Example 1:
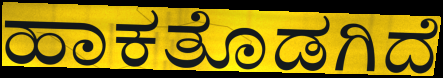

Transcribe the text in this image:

ಹಾಕತೊಡಗಿದೆ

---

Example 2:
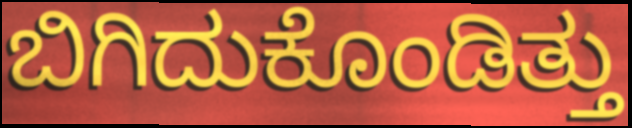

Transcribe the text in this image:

ಬಿಗಿದುಕೊಂಡಿತ್ತು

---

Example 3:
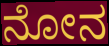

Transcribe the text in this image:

ನೋನ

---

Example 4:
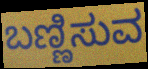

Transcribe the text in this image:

ಬಣ್ಣಿಸುವ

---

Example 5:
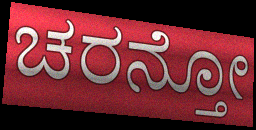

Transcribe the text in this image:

ಚರನ್ತೋ